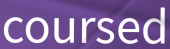
coursed